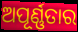
ଅପୂର୍ଣ୍ଣତାର